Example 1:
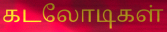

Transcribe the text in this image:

கடலோடிகள்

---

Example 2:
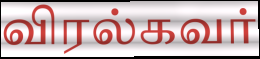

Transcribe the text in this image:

விரல்கவர்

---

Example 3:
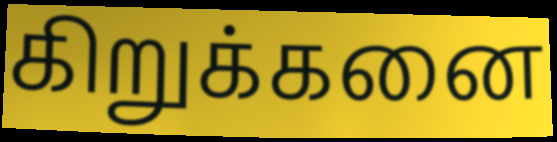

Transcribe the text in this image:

கிறுக்கனை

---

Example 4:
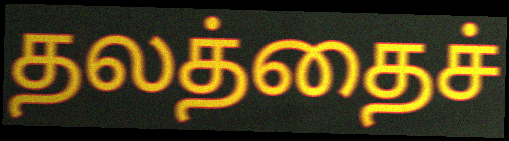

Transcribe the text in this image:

தலத்தைச்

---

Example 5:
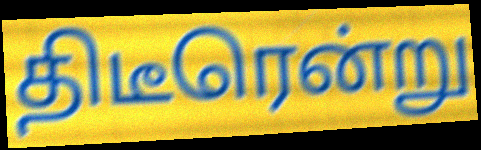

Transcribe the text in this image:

திடீரென்று